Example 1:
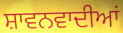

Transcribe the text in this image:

ਸ਼ਾਵਨਵਾਦੀਆਂ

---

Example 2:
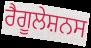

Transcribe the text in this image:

ਰੈਗੂਲੇਸ਼ਨਸ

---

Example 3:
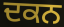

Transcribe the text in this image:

ਦਕਨ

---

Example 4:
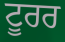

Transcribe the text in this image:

ਟੂਰਰ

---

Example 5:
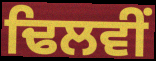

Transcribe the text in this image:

ਢਿਲਵੀਂ